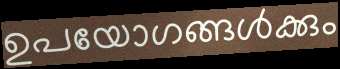
ഉപയോഗങ്ങൾക്കും